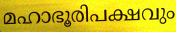
മഹാഭൂരിപക്ഷവും